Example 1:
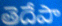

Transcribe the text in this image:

తెదేపా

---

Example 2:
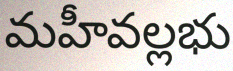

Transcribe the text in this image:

మహీవల్లభు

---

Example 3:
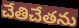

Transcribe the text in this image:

చేతిచేతను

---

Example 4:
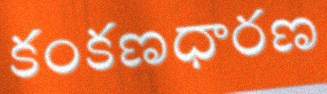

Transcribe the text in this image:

కంకణధారణ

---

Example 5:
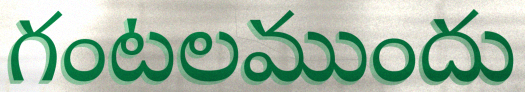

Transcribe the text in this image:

గంటలముందు